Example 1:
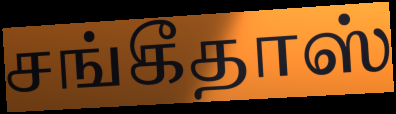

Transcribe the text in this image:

சங்கீதாஸ்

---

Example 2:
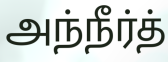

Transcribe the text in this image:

அந்நீர்த்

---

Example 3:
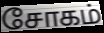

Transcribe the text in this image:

சோகம்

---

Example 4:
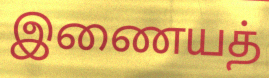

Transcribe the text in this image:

இணையத்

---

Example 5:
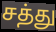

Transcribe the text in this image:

சத்து